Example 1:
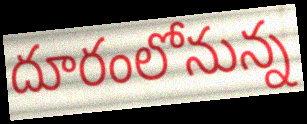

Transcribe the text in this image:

దూరంలోనున్న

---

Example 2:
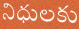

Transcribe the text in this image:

నిధులకు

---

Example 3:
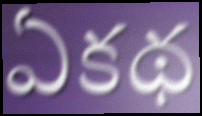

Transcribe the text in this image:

ఏకథ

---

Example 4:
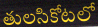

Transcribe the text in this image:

తులసికోటలో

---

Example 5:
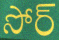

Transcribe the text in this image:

సోర్